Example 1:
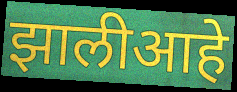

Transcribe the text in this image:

झालीआहे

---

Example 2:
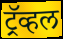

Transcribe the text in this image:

ट्रॅव्हल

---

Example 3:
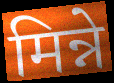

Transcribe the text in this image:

मिन्ने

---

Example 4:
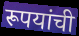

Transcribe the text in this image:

रूपयांची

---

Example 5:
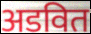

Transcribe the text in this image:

अडवित